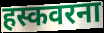
हस्कवरना